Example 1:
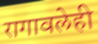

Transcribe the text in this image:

रागावलेही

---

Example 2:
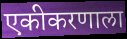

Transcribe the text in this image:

एकीकरणाला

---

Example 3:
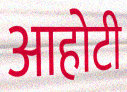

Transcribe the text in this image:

आहोटी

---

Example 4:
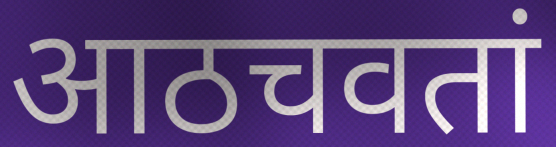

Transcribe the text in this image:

आठचवतां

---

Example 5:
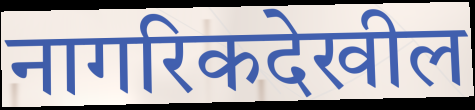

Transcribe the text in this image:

नागरिकदेखील